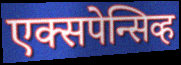
एक्सपेन्सिव्ह